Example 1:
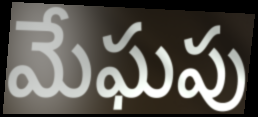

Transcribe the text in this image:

మేఘపు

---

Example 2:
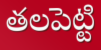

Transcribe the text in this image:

తలపెట్టి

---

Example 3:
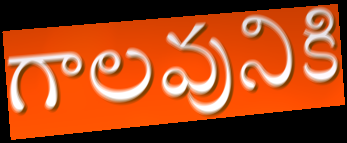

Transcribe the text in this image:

గాలవునికి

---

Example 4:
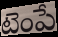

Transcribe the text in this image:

టెంపే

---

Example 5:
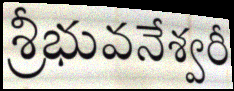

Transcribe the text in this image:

శ్రీభువనేశ్వరీ